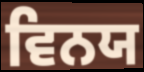
ਵਿਨਯ